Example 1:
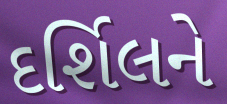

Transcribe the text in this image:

દર્શિલને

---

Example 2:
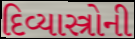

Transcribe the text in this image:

દિવ્યાસ્ત્રોની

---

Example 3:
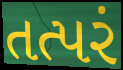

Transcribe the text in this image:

તત્પરં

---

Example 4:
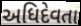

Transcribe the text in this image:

અધિદેવતા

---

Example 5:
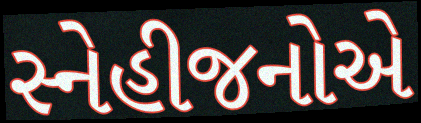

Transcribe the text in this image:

સ્નેહીજનોએ